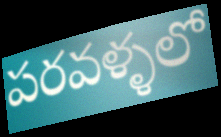
పరవళ్ళలో